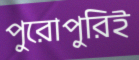
পুরোপুরিই